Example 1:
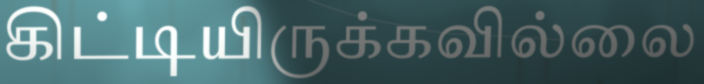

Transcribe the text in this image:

கிட்டியிருக்கவில்லை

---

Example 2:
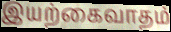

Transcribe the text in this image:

இயற்கைவாதம்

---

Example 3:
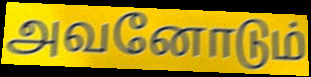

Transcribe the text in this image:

அவனோடும்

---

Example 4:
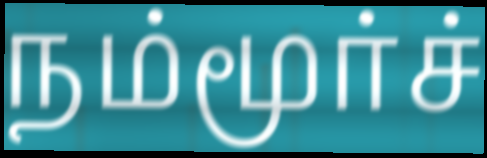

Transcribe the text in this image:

நம்மூர்ச்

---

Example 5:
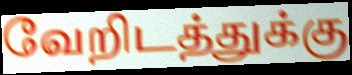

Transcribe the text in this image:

வேறிடத்துக்கு